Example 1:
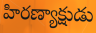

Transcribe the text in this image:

హిరణ్యాక్షుడు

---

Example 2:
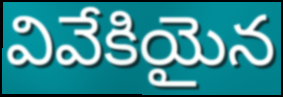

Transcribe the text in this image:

వివేకియైన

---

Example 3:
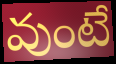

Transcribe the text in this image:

వుంటే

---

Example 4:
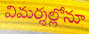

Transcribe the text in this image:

విమర్శల్లోనూ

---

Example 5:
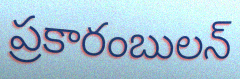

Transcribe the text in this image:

ప్రకారంబులన్